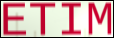
ETIM